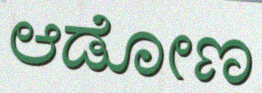
ಆಡೋಣ